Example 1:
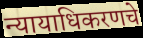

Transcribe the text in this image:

न्यायाधिकरणचे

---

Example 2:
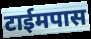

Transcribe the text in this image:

टाईमपास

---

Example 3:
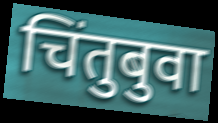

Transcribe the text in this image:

चिंतुबुवा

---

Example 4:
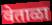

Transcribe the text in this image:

वेताळा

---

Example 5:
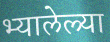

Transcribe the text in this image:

भ्यालेल्या